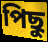
পিছু